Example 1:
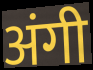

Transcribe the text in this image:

अंगी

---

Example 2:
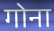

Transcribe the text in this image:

गोना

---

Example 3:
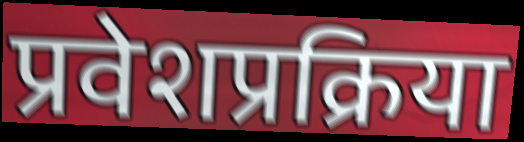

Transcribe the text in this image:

प्रवेशप्रक्रिया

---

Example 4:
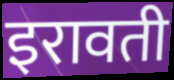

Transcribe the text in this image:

इरावती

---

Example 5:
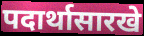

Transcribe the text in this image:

पदार्थासारखे